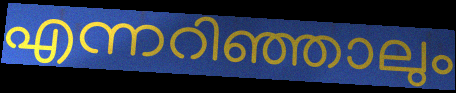
എന്നറിഞ്ഞാലും